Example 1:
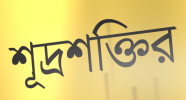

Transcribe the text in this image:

শূদ্রশক্তির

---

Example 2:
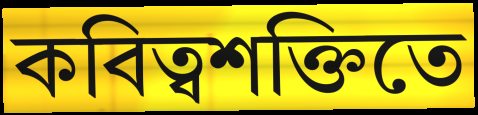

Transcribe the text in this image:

কবিত্বশক্তিতে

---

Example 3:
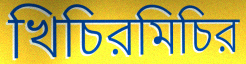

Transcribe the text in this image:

খিচিরমিচির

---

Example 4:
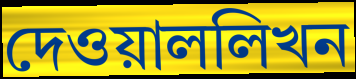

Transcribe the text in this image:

দেওয়াললিখন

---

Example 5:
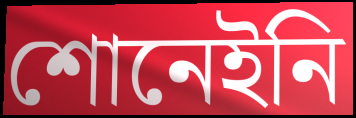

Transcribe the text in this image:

শোনেইনি